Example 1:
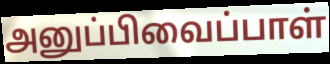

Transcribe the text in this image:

அனுப்பிவைப்பாள்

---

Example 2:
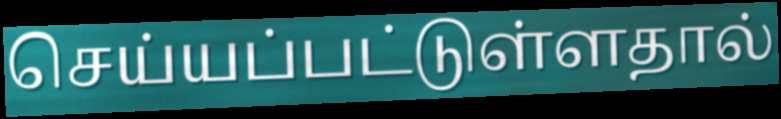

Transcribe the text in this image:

செய்யப்பட்டுள்ளதால்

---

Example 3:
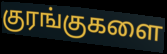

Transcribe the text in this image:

குரங்குகளை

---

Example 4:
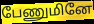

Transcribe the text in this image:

பேணுமினே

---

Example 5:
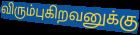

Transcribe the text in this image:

விரும்புகிறவனுக்கு